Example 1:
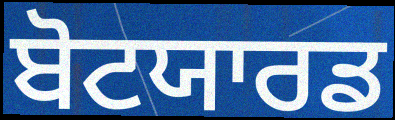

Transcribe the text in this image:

ਬੋਟਯਾਰਡ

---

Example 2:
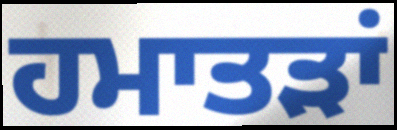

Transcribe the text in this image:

ਹਮਾਤੜਾਂ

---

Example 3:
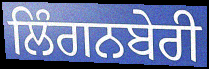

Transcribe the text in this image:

ਲਿੰਗਨਬੇਰੀ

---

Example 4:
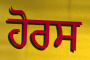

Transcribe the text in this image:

ਹੋਰਸ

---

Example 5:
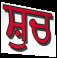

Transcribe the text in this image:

ਸ਼ੁਚ